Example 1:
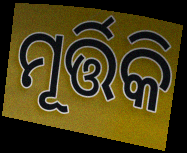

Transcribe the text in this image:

ମୂର୍ତ୍ତିକି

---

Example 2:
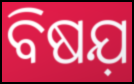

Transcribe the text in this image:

ବିଷଯ଼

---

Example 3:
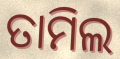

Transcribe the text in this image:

ତାମିଲ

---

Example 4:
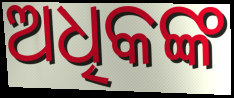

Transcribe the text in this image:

ଅଧିକଙ୍କ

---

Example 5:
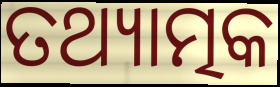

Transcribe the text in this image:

ତଥ୍ୟାତ୍ମକ